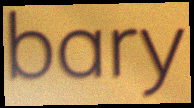
bary